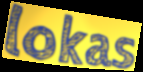
lokas